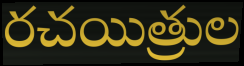
రచయిత్రుల